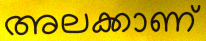
അലക്കാണ്